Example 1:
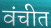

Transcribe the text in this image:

वंचीत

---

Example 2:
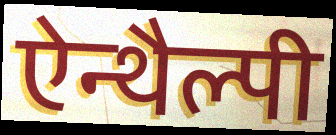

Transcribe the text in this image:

ऐन्थैल्पी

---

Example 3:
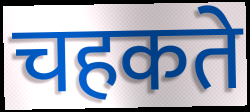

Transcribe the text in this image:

चहकते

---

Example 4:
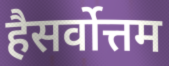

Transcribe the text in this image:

हैसर्वोत्तम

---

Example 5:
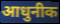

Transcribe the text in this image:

आधुनीक